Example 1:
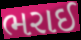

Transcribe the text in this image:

ભરાઈ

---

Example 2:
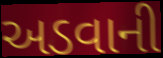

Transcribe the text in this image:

અડવાની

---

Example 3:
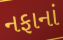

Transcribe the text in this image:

નફાનાં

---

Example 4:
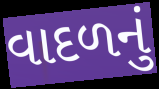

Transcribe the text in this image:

વાદળનું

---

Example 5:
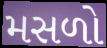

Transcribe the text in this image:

મસળો